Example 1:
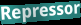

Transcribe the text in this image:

Repressor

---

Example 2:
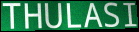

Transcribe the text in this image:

THULASI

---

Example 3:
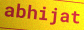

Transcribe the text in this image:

abhijat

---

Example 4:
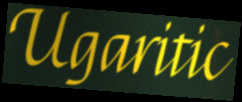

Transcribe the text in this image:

Ugaritic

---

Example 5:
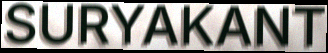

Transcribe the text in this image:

SURYAKANT